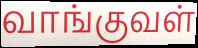
வாங்குவள்